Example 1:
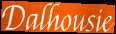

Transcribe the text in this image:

Dalhousie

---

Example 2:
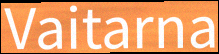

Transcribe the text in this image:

Vaitarna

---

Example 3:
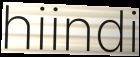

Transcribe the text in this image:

hiindi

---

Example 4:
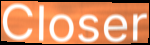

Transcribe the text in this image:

Closer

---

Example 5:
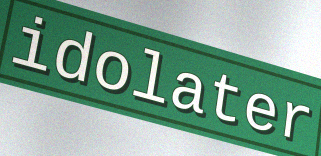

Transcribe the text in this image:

idolater